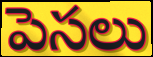
పెసలు